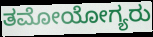
ತಮೋಯೋಗ್ಯರು